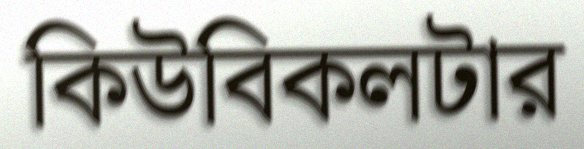
কিউবিকলটার